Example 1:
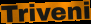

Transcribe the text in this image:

Triveni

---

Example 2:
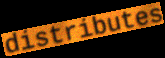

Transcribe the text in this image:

distributes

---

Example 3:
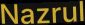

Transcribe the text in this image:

Nazrul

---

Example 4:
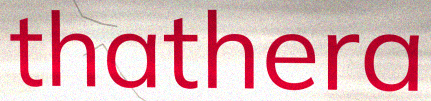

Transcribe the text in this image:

thathera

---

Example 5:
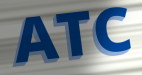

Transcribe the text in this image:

ATC